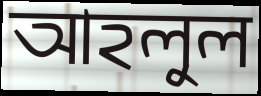
আহলুল